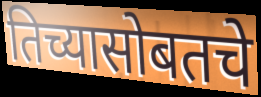
तिच्यासोबतचे